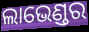
ଲାଭେଣ୍ଡର